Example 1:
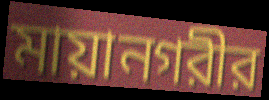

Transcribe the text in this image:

মায়ানগরীর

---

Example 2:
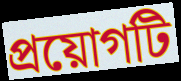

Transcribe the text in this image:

প্রয়োগটি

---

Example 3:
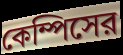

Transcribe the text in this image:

কেম্পিসের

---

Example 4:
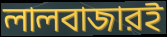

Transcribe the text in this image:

লালবাজারই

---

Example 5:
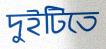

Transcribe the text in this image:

দুইটিতে